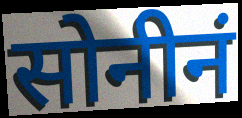
सोनीनं